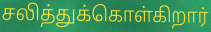
சலித்துக்கொள்கிறார்